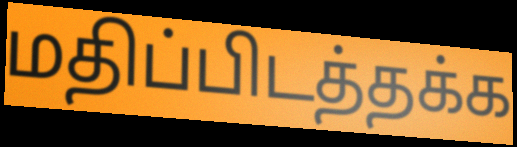
மதிப்பிடத்தக்க